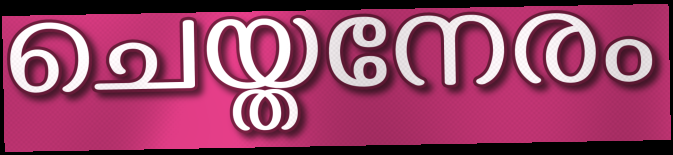
ചെയ്തനേരം